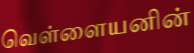
வெள்ளையனின்